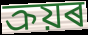
ক্ৰয়ৰ